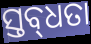
ସ୍ତବ୍‌ଧତା